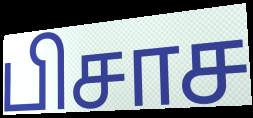
பிசாச